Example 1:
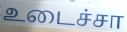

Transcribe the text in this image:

உடைச்சா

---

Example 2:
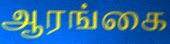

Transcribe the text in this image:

ஆரங்கை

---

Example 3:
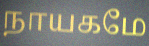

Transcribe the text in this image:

நாயகமே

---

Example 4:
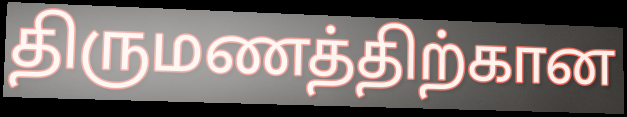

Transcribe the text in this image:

திருமணத்திற்கான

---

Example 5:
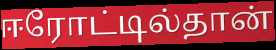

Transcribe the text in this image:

ஈரோட்டில்தான்